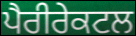
ਪੈਰੀਰੇਕਟਲ